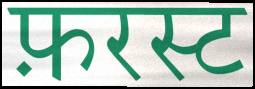
फ़रस्ट